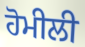
ਹੋਮੀਲੀ